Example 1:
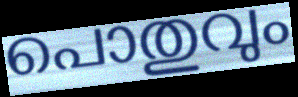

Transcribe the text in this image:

പൊതുവും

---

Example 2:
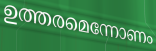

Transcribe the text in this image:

ഉത്തരമെന്നോണം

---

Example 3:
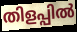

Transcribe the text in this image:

തിളപ്പിൽ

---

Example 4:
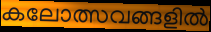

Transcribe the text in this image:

കലോത്സവങ്ങളിൽ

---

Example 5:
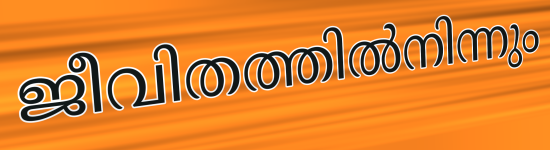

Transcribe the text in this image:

ജീവിതത്തിൽനിന്നും